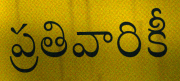
ప్రతివారికీ